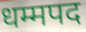
धम्मपद